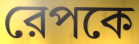
রেপকে